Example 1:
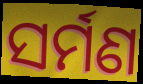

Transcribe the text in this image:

ସର୍ମଣ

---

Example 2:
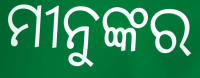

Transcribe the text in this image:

ମୀନୁଙ୍କର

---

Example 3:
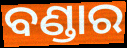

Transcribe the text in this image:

ବଣ୍ଡାର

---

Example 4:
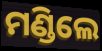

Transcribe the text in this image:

ମଣ୍ଡିଲେ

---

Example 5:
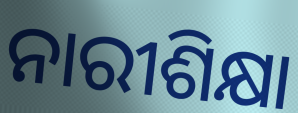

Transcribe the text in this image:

ନାରୀଶିକ୍ଷା